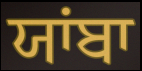
ਯਾਂਬਾ